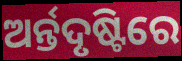
ଅର୍ନ୍ତଦୃଷ୍ଟିରେ